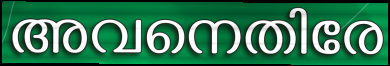
അവനെതിരേ